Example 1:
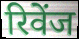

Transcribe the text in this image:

रिवेंज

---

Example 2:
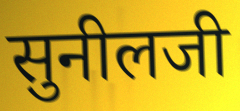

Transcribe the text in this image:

सुनीलजी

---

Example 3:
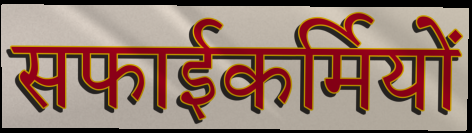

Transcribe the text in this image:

सफाईकर्मियों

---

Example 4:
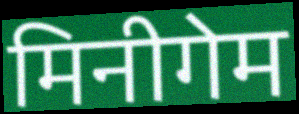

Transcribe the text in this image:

मिनीगेम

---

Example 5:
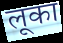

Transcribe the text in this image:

लूका